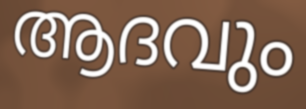
ആദവും